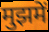
मुझमें